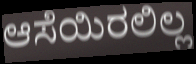
ಆಸೆಯಿರಲಿಲ್ಲ